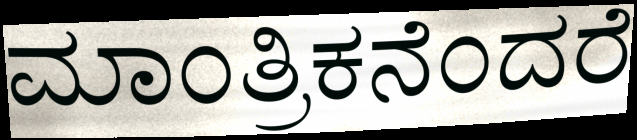
ಮಾಂತ್ರಿಕನೆಂದರೆ